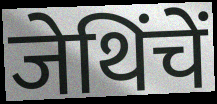
जेथिंचें